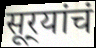
सूर्यांचं